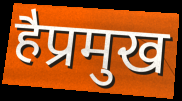
हैप्रमुख